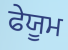
ਫੇਯੂਮ